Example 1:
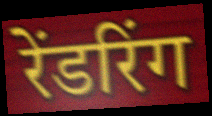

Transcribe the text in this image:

रेंडरिंग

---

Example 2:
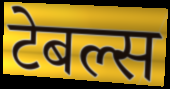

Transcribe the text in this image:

टेबल्स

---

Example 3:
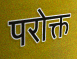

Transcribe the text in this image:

परोक्त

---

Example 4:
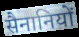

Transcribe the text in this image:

सैनानियों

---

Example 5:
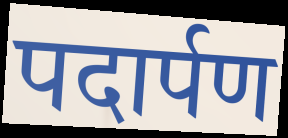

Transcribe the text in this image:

पदार्पण